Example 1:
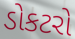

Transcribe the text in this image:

ડોકટરો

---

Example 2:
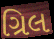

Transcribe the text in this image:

ગ્રિલ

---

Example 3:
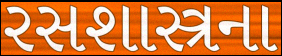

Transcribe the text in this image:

રસશાસ્ત્રના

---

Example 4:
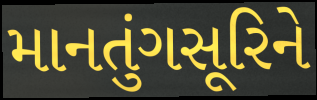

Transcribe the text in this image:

માનતુંગસૂરિને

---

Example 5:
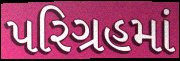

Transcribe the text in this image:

પરિગ્રહમાં